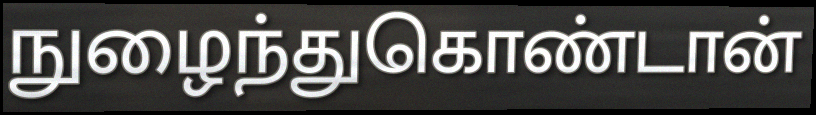
நுழைந்துகொண்டான்